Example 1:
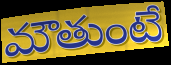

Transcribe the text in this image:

మౌతుంటే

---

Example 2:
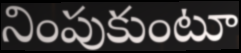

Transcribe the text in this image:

నింపుకుంటూ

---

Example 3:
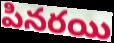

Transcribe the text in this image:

పినరయి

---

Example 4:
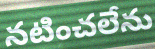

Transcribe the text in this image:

నటించలేను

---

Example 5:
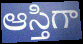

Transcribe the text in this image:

ఆస్తిగా